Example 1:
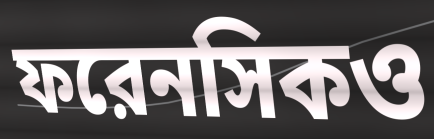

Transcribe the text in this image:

ফরেনসিকও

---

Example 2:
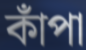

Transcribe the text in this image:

কাঁপা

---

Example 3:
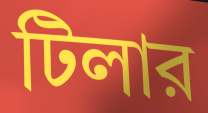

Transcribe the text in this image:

টিলার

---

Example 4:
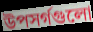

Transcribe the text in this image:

উপসর্গগুলো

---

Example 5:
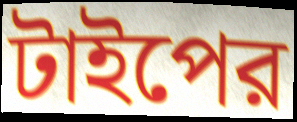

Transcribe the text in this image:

টাইপের